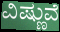
ವಿಷ್ಣುವೆ